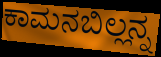
ಕಾಮನಬಿಲ್ಲನ್ನ